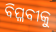
ବିପ୍ଳବୀକୁ